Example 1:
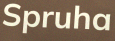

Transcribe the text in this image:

Spruha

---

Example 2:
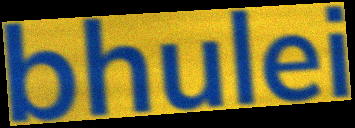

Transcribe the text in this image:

bhulei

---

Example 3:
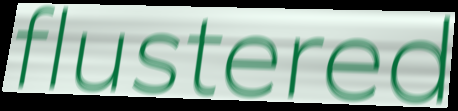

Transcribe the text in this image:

flustered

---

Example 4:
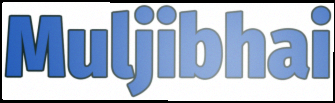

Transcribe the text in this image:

Muljibhai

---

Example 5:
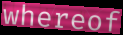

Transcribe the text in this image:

whereof